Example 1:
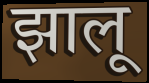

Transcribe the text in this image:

झालू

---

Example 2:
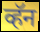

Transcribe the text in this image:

व्हॅन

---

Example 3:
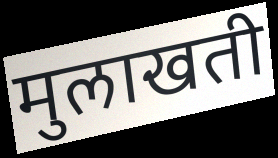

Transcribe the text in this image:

मुलाखती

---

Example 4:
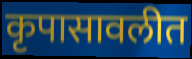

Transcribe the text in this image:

कृपासावलीत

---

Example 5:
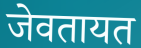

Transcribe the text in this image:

जेवतायत